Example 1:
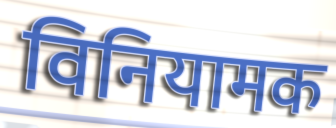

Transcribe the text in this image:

विनियामक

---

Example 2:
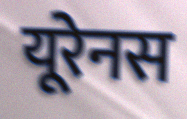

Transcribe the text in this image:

यूरेनस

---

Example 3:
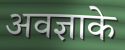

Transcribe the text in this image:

अवज्ञाके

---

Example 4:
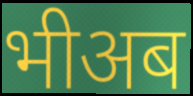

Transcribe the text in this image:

भीअब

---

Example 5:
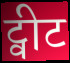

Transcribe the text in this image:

ट्वीट